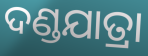
ଦଣ୍ଡଯାତ୍ରା